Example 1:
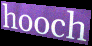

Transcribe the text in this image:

hooch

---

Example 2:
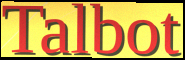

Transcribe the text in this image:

Talbot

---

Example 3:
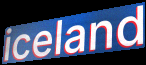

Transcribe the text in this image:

iceland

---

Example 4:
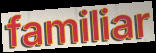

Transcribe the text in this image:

familiar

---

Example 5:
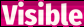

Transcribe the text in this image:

Visible